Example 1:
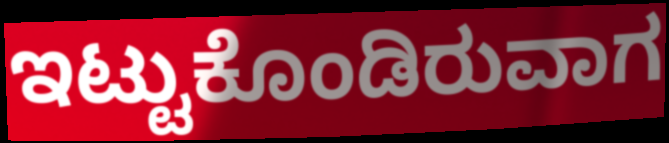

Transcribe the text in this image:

ಇಟ್ಟುಕೊಂಡಿರುವಾಗ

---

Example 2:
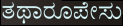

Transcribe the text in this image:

ತಥಾರೂಪೇಸು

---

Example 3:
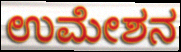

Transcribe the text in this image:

ಉಮೇಶನ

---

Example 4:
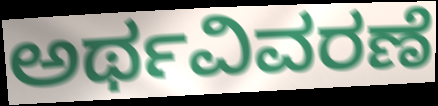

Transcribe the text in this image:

ಅರ್ಥವಿವರಣೆ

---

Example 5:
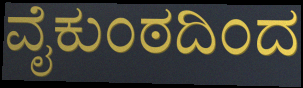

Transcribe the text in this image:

ವೈಕುಂಠದಿಂದ